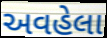
અવહેલા